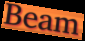
Beam